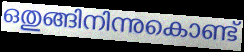
ഒതുങ്ങിനിന്നുകൊണ്ട്